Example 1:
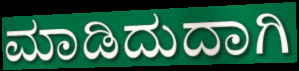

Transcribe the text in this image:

ಮಾಡಿದುದಾಗಿ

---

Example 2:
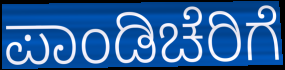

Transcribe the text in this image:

ಪಾಂಡಿಚೆರಿಗೆ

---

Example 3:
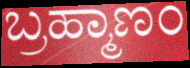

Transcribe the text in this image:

ಬ್ರಹ್ಮಾಣಂ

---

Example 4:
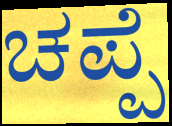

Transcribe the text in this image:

ಚಪ್ಪೆ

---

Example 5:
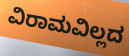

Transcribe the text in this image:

ವಿರಾಮವಿಲ್ಲದ